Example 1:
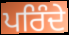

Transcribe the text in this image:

ਪਰਿੰਦੇ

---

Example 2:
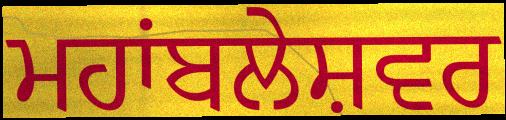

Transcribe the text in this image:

ਮਹਾਂਬਲੇਸ਼ਵਰ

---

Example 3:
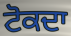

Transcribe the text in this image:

ਟੋਕਦਾ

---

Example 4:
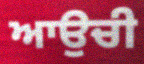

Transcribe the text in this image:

ਆਉਚੀ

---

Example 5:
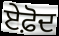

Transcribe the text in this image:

ਏਫ਼ੋਦ